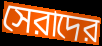
সেরাদের